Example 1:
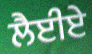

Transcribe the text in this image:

ਲੈਈਏ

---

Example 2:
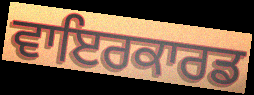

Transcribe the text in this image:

ਵਾਇਰਕਾਰਡ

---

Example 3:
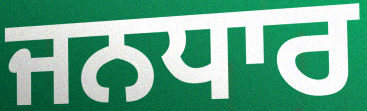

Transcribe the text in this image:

ਜਨਧਾਰ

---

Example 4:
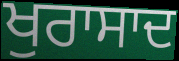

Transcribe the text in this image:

ਖੁਰਾਸਾਦ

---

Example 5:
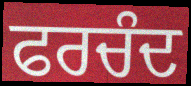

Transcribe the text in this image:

ਫਰਚੰਦ